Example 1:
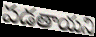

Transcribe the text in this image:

పడతాయని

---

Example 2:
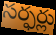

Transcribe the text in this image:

సర్ఫర్లు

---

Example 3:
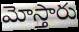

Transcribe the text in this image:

మోస్తారు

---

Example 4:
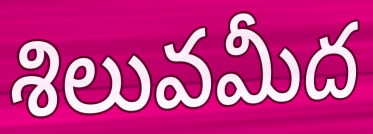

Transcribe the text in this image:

శిలువమీద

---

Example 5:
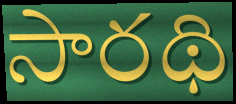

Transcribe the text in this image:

సారథి